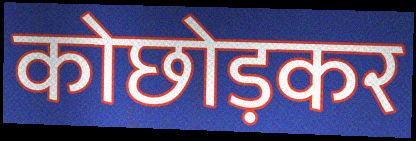
कोछोड़कर